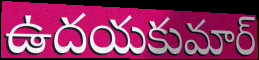
ఉదయకుమార్